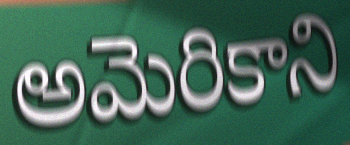
అమెరికాని